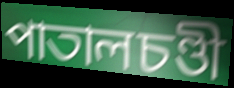
পাতালচণ্ডী